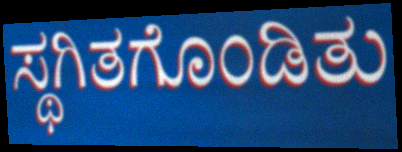
ಸ್ಥಗಿತಗೊಂಡಿತು